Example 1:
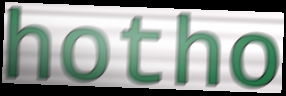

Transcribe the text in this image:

hotho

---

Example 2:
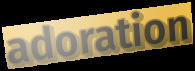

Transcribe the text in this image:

adoration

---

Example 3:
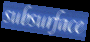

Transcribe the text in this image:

subsurface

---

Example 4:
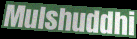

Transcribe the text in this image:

Mulshuddhi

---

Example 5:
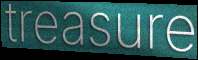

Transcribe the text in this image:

treasure